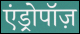
एंड्रोपॉज़